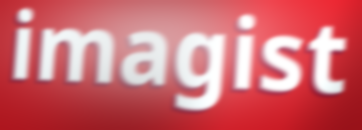
imagist